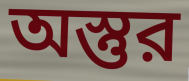
অস্তুর